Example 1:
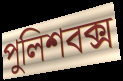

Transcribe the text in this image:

পুলিশবক্স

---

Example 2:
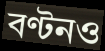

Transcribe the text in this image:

বণ্টনও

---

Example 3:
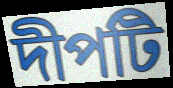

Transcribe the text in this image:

দীপটি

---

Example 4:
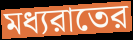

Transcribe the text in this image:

মধ্যরাতের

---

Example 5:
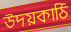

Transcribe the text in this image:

উদয়কাঠি